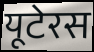
यूटेरस